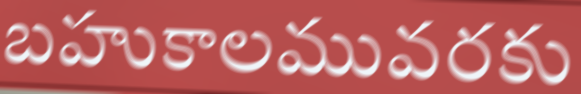
బహుకాలమువరకు